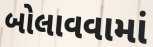
બોલાવવામાં